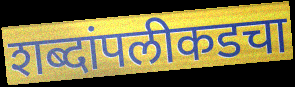
शब्दांपलीकडचा